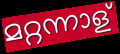
മറ്റന്നാള്